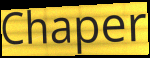
Chaper